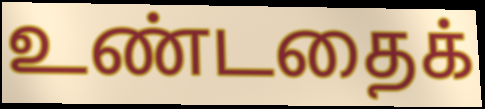
உண்டதைக்